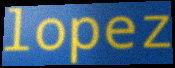
lopez